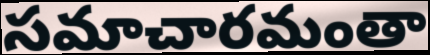
సమాచారమంతా